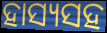
ହାସ୍ୟସହ